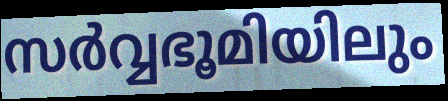
സർവ്വഭൂമിയിലും